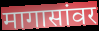
मागासांवर